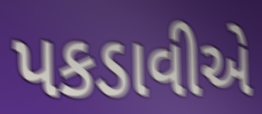
પકડાવીએ